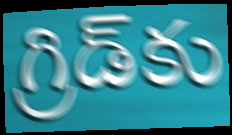
గ్రిడ్‌కు